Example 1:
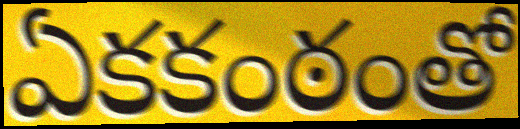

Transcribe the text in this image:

ఏకకంఠంతో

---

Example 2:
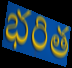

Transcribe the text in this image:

భరిత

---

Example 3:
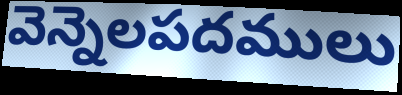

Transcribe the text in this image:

వెన్నెలపదములు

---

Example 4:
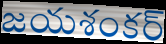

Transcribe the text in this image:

జయశంకర్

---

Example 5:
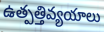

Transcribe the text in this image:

ఉత్పత్తివ్యయాలు